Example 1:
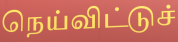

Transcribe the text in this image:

நெய்விட்டுச்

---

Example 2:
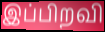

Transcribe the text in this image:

இப்பிறவி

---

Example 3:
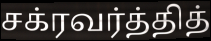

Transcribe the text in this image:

சக்ரவர்த்தித்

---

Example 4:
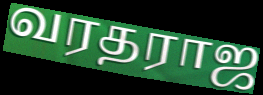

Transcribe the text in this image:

வரதராஜ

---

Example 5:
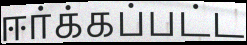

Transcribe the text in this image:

ஈர்க்கப்பட்ட